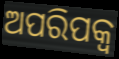
ଅପରିପକ୍ୱ